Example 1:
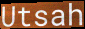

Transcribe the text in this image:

Utsah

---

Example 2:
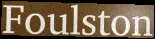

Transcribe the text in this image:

Foulston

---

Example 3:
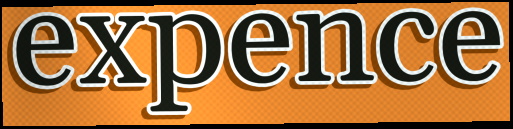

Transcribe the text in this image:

expence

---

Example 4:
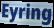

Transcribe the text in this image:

Eyring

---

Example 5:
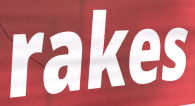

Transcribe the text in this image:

rakes